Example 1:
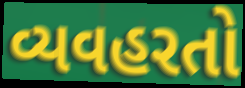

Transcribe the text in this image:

વ્યવહરતો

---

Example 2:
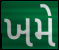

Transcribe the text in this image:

ખમે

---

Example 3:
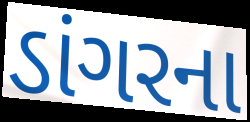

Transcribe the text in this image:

ડાંગરના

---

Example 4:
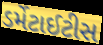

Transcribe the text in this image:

ડર્મેટાઈટીસ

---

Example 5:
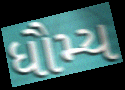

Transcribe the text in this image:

ધૌમ્ય